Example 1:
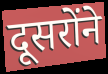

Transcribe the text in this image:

दूसरोंने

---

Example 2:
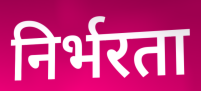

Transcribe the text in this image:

निर्भरता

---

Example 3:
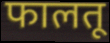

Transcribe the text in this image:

फालतू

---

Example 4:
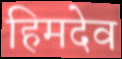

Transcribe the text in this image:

हिमदेव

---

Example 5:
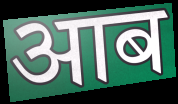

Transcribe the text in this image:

आब